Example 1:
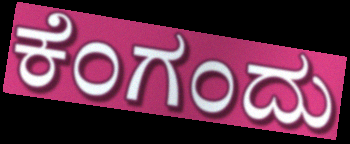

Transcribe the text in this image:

ಕೆಂಗಂದು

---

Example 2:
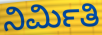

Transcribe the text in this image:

ನಿರ್ಮಿತಿ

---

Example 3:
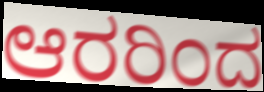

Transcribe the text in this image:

ಆರರಿಂದ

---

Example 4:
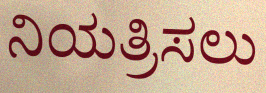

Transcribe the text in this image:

ನಿಯತ್ರಿಸಲು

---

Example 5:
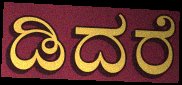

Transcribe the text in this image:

ಡಿದರೆ